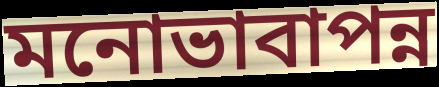
মনোভাবাপন্ন